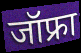
जॉफ्रा